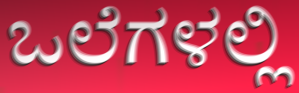
ಒಲೆಗಳಲ್ಲಿ